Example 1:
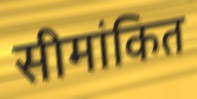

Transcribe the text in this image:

सीमांकित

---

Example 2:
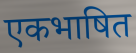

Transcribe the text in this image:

एकभाषित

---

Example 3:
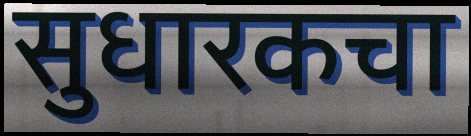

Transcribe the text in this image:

सुधारकचा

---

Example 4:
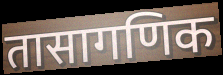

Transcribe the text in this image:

तासागणिक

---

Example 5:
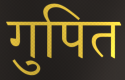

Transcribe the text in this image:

गुपित